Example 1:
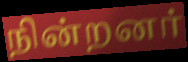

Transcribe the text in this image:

நின்றனர்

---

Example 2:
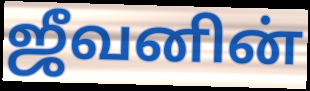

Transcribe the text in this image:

ஜீவனின்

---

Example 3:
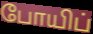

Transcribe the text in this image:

போயிப்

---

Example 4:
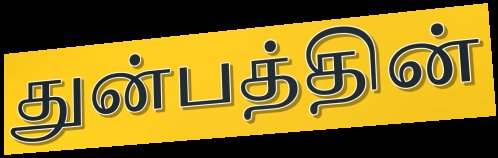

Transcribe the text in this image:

துன்பத்தின்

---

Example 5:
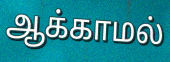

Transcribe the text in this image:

ஆக்காமல்